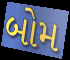
બોમ